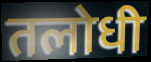
तलोधी